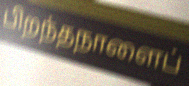
பிறந்தநாளைப்